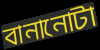
বানানোটা